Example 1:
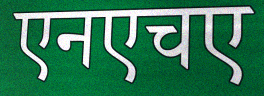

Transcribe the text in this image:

एनएचए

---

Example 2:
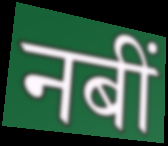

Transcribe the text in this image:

नबीं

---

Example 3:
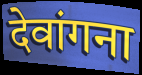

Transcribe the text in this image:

देवांगना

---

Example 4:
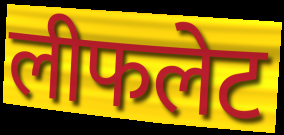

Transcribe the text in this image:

लीफलेट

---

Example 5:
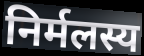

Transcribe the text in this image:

निर्मलस्य